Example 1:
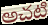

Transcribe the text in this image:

అచటి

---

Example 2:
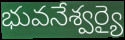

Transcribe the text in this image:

భువనేశ్వర్యై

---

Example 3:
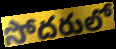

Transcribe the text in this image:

సోదరులో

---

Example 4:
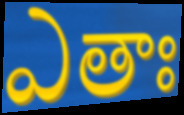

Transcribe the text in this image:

ఎతాః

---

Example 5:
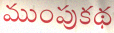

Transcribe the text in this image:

ముంపుకథ